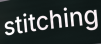
stitching